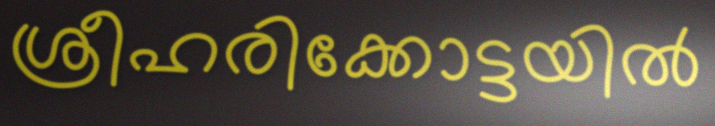
ശ്രീഹരിക്കോട്ടയിൽ